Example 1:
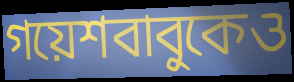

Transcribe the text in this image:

গয়েশবাবুকেও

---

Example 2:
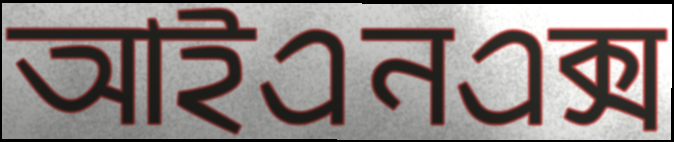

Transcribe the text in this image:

আইএনএক্স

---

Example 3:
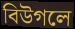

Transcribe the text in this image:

বিউগলে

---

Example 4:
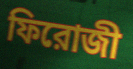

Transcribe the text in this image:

ফিরোজী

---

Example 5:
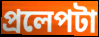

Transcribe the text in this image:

প্রলেপটা